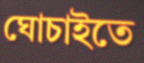
ঘোচাইতে